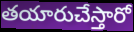
తయారుచేస్తారో